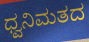
ಧ್ವನಿಮತದ